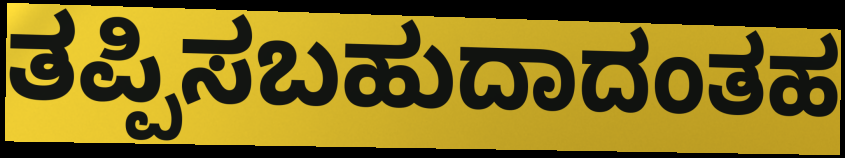
ತಪ್ಪಿಸಬಹುದಾದಂತಹ